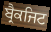
ਬ੍ਰੈਕਜਿਟ